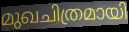
മുഖചിത്രമായി